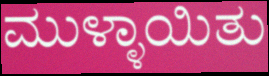
ಮುಳ್ಳಾಯಿತು